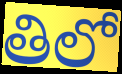
తిలో